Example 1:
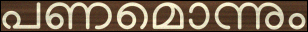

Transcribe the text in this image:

പണമൊന്നും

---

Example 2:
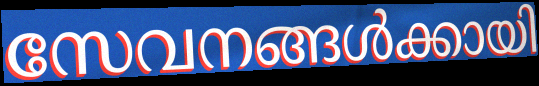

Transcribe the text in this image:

സേവനങ്ങൾക്കായി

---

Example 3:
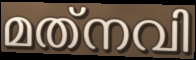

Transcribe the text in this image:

മത്‌നവി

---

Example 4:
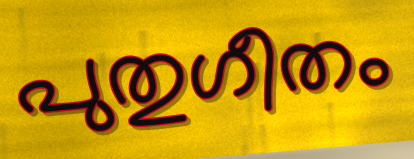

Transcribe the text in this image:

പുതുഗീതം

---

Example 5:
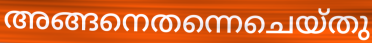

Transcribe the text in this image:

അങ്ങനെതന്നെചെയ്തു